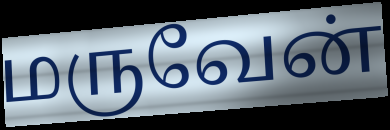
மருவேன்